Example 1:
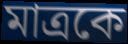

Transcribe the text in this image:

মাত্ৰকে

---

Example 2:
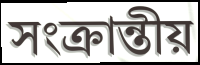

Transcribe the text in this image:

সংক্ৰান্তীয়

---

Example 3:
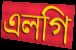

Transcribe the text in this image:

এলগি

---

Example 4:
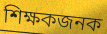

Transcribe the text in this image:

শিক্ষকজনক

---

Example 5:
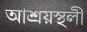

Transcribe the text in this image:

আশ্ৰয়স্থলী